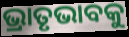
ଭ୍ରାତୃଭାବକୁ